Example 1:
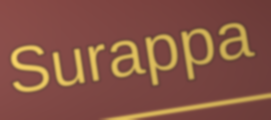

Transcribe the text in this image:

Surappa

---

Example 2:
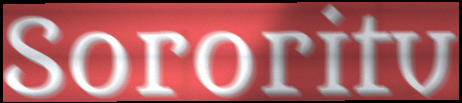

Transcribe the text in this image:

Sororitu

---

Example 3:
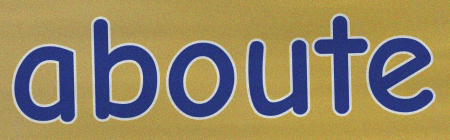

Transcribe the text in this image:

aboute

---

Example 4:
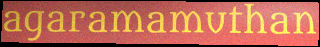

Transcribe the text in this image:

agaramamuthan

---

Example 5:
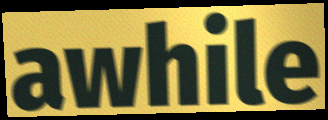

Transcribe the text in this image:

awhile